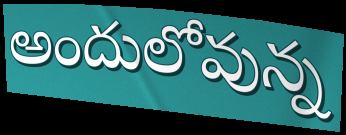
అందులోవున్న